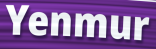
Yenmur